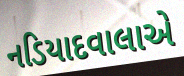
નડિયાદવાલાએ